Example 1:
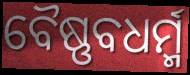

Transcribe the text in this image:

ବୈଷ୍ଣବଧର୍ମ୍ମ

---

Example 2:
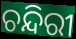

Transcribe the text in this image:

ଚନ୍ଦିରୀ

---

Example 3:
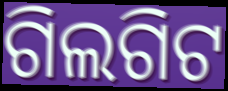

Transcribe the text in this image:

ଗିଲଗିଟ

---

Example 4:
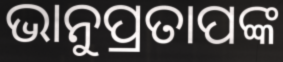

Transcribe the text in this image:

ଭାନୁପ୍ରତାପଙ୍କ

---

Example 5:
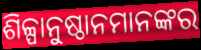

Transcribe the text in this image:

ଶିଳ୍ପାନୁଷ୍ଠାନମାନଙ୍କର